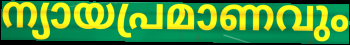
ന്യായപ്രമാണവും